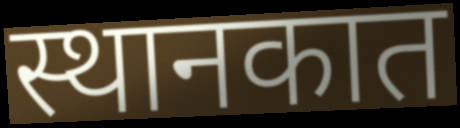
स्थानकात